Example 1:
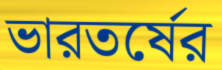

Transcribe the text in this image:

ভারতর্ষের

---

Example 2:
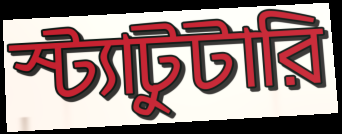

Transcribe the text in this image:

স্ট্যাটুটারি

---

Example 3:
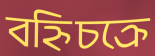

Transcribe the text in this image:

বহ্নিচক্রে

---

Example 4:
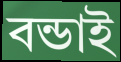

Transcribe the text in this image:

বন্ডাই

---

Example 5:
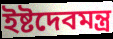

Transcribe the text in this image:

ইষ্টদেবমন্ত্র